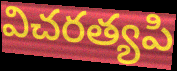
విచరత్యపి